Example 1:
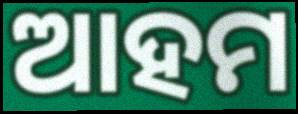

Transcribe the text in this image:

ଆହମ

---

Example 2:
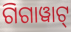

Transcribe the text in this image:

ଗିଗାୱାଟ୍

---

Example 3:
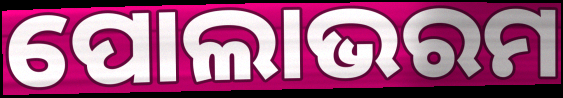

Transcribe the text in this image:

ପୋଲାଭରମ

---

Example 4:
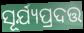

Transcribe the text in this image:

ସୂର୍ଯ୍ୟପ୍ରଦତ୍ତ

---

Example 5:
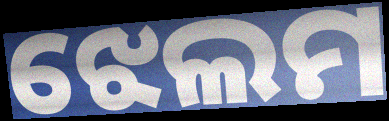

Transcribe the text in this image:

ଝେଲମ